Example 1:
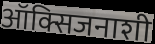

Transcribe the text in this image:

ऑक्सिजनाशी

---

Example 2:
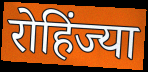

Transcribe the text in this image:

रोहिंज्या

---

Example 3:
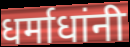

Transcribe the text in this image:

धर्माधांनी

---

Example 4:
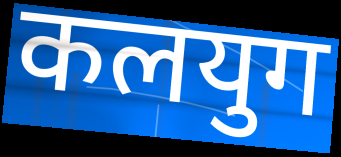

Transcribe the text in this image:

कलयुग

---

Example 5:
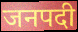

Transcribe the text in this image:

जनपदी